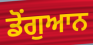
ਡੋਂਗੁਆਨ